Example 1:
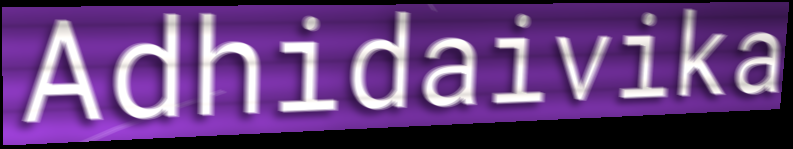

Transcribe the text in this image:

Adhidaivika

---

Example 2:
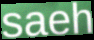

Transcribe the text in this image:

saeh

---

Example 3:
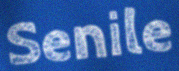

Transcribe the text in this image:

Senile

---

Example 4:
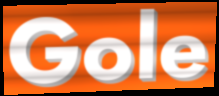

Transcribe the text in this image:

Gole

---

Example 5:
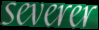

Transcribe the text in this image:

severer